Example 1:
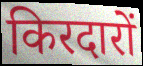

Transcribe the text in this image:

किरदारों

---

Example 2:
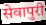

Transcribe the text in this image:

सेवापुरी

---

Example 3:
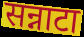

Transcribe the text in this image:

सन्नाटा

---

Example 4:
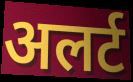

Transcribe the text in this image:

अलर्ट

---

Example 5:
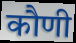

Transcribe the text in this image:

कौणी